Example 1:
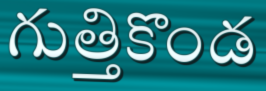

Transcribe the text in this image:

గుత్తికొండ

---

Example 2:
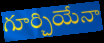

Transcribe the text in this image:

గూర్చియేనా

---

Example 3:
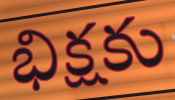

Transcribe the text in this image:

భిక్షకు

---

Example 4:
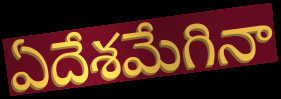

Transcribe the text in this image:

ఏదేశమేగినా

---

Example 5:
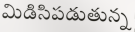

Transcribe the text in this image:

మిడిసిపడుతున్న